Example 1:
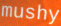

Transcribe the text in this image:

mushy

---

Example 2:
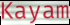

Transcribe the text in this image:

Kayam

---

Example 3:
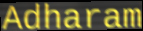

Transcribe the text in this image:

Adharam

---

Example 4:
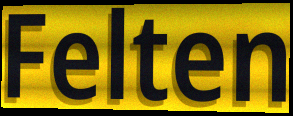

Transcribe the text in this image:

Felten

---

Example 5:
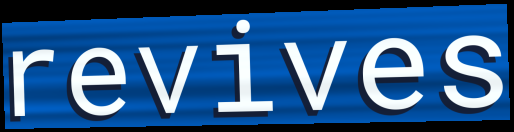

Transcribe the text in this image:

revives